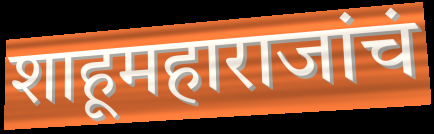
शाहूमहाराजांचं